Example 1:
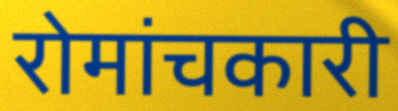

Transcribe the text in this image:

रोमांचकारी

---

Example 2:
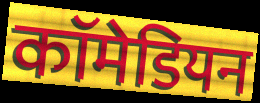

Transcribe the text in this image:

कॉमेडियन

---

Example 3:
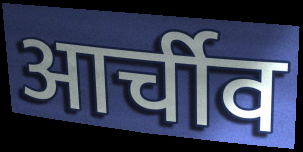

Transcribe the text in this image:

आर्चीव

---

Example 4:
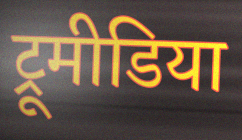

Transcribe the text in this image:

ट्रूमीडिया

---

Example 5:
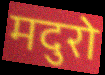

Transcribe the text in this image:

मदुरो